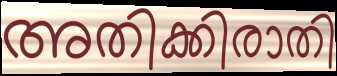
അതിക്കിരാതി